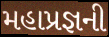
મહાપ્રજ્ઞની